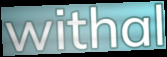
withal